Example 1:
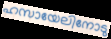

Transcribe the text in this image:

ഹസായേലിനോടു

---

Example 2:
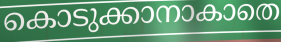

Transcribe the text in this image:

കൊടുക്കാനാകാതെ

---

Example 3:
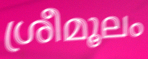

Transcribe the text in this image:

ശ്രീമൂലം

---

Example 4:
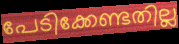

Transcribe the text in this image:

പേടിക്കേണ്ടതില്ല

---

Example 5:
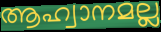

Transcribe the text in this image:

ആഹ്വാനമല്ല